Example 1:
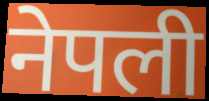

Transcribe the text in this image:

नेपली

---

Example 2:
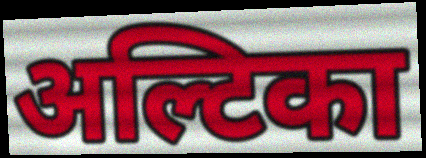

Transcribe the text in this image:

अल्टिका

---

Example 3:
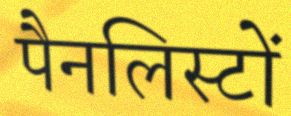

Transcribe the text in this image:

पैनलिस्टों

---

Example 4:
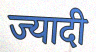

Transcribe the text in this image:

ज्यादी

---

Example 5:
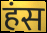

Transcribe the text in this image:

हंस